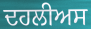
ਦਹਲੀਅਸ